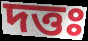
দত্তঃ